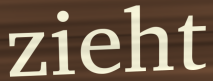
zieht